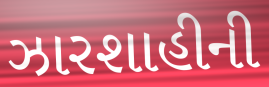
ઝારશાહીની